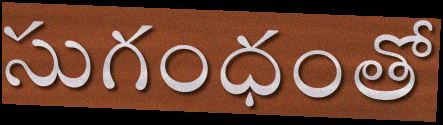
సుగంధంతో